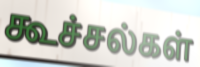
கூச்சல்கள்